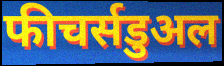
फीचर्सडुअल